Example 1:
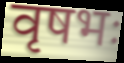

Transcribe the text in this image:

वृषभः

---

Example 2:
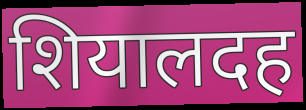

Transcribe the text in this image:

शियालदह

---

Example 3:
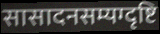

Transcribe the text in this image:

सासादनसम्यग्दृष्टि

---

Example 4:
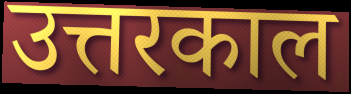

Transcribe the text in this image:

उत्तरकाल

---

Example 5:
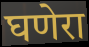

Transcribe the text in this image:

घणेरा